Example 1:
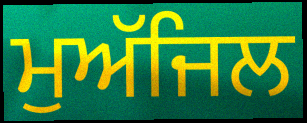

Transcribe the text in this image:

ਮੁਅੱਜਿਲ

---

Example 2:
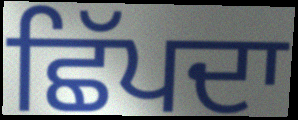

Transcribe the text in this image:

ਛਿੱਪਦਾ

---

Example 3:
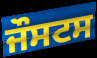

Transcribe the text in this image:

ਜੌਸਟਸ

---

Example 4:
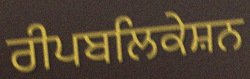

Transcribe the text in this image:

ਰੀਪਬਲਿਕੇਸ਼ਨ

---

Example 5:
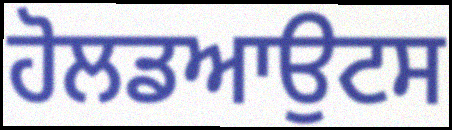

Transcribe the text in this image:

ਹੋਲਡਆਉਟਸ